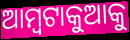
ଆମ୍ବଟାକୁଆକୁ